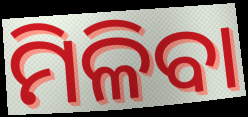
ମିଳିବା